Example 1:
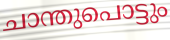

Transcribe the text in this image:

ചാന്തുപൊട്ടും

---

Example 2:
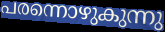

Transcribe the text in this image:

പരന്നൊഴുകുന്നു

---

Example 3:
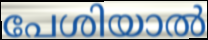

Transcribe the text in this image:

പേശിയാൽ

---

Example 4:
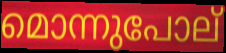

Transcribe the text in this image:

മൊന്നുപോല്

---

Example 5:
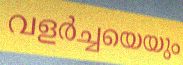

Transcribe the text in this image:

വളർച്ചയെയും